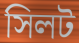
সিলট